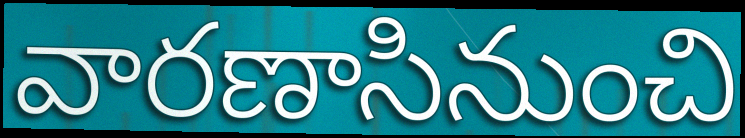
వారణాసినుంచి